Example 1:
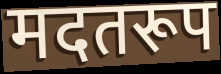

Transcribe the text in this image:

मदतरूप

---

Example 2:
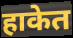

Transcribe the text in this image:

हाकेत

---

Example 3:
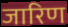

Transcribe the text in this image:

जारिण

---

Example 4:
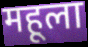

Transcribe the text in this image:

महूला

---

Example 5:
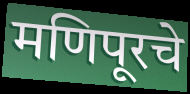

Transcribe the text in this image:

मणिपूरचे